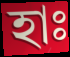
হাঃ